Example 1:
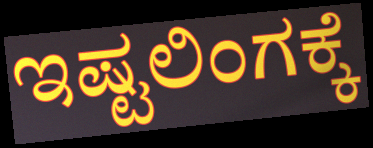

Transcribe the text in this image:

ಇಷ್ಟಲಿಂಗಕ್ಕೆ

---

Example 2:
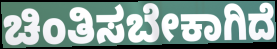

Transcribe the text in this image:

ಚಿಂತಿಸಬೇಕಾಗಿದೆ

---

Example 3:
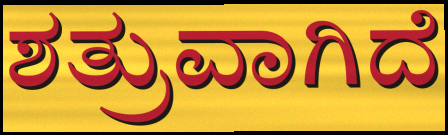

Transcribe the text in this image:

ಶತ್ರುವಾಗಿದೆ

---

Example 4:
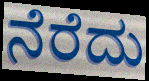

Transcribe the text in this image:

ನೆರೆದು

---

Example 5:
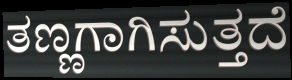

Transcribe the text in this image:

ತಣ್ಣಗಾಗಿಸುತ್ತದೆ